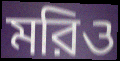
মরিও